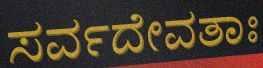
ಸರ್ವದೇವತಾಃ